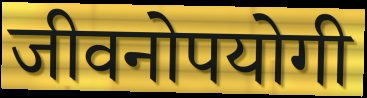
जीवनोपयोगी